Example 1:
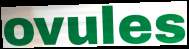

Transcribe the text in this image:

ovules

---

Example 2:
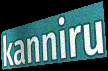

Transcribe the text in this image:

kanniru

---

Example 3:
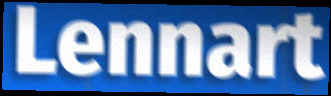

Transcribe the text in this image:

Lennart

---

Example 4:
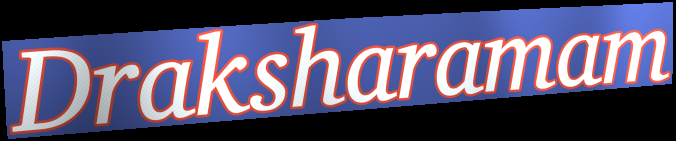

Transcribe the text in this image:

Draksharamam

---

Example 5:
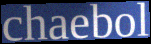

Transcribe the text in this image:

chaebol